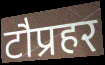
टौप्रहर